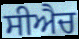
ਸੀਐਚ